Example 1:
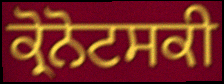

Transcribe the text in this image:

ਕ੍ਰੋਨੋਟਸਕੀ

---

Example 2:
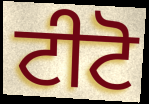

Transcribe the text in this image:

ਟੀਟੋ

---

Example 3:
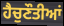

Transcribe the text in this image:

ਹੈਚੁਣੌਤੀਆਂ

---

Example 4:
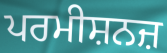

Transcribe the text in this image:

ਪਰਮੀਸ਼ਨਜ਼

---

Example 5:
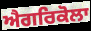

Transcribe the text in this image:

ਐਗਰਿਕੋਲਾ